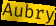
Aubry